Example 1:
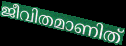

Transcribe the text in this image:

ജീവിതമാണിത്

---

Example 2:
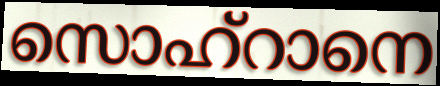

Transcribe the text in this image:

സൊഹ്റാനെ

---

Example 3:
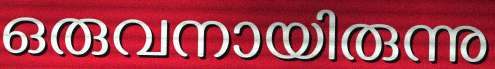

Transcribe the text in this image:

ഒരുവനായിരുന്നു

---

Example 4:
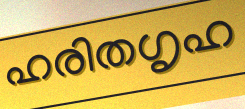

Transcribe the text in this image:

ഹരിതഗൃഹ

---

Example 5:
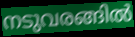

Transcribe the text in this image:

നടുവരങ്ങിൽ